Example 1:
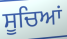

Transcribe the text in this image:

ਸੂਚਿਆਂ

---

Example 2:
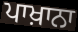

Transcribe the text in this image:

ਪਾਖ਼ਾਨਾ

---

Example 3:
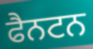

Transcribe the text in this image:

ਫੈਨਟਨ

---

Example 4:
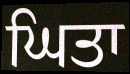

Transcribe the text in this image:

ਘਿਤਾ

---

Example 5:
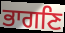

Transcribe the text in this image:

ਭਾਗਣਿ